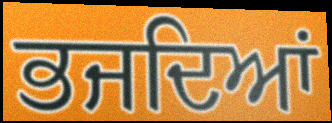
ਭਜਦਿਆਂ